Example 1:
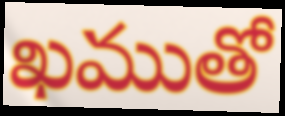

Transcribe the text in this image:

ఖముతో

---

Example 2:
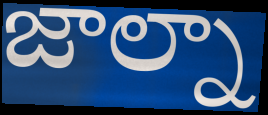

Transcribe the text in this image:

జాల్నా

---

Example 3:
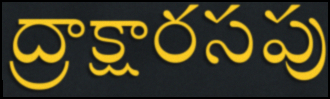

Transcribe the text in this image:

ద్రాక్షారసపు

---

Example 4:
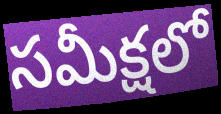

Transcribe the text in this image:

సమీక్షలో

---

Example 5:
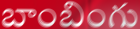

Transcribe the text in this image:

బాంబింగు